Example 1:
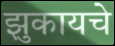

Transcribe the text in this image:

झुकायचे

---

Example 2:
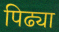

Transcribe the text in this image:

पिढ्या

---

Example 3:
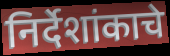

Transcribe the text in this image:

निर्देशांकाचे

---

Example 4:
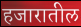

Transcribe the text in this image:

हजारातील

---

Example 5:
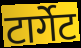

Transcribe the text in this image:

टार्गेट